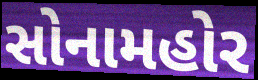
સોનામહોર